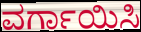
ವರ್ಗಾಯಿಸಿ